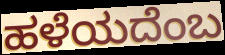
ಹಳೆಯದೆಂಬ